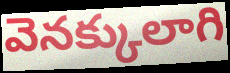
వెనక్కులాగి